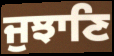
ਜੁਝਾਣਿ